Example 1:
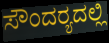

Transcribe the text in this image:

ಸೌಂದರ‍್ಯದಲ್ಲಿ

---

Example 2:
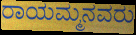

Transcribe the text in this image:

ರಾಯಮ್ಮನವರು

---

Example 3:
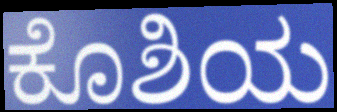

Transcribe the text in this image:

ಕೊಶಿಯ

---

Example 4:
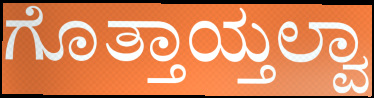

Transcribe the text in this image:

ಗೊತ್ತಾಯ್ತಲ್ವಾ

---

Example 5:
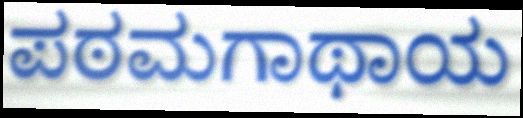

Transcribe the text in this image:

ಪಠಮಗಾಥಾಯ